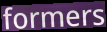
formers